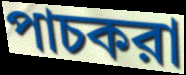
পাচকরা